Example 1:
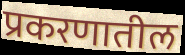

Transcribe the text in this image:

प्रकरणातील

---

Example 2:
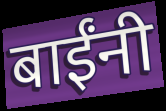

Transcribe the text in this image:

बाईंनी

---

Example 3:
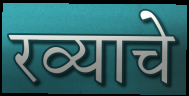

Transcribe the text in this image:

रव्याचे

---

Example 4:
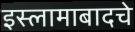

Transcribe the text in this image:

इस्लामाबादचे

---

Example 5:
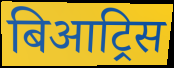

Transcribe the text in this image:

बिआट्रिस